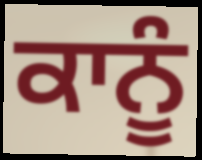
ਕਾਨੂੰ